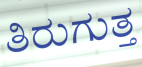
ತಿರುಗುತ್ತ